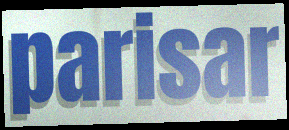
parisar